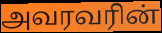
அவரவரின்